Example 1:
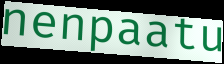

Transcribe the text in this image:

nenpaatu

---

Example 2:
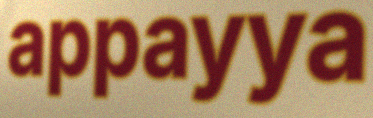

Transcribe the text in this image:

appayya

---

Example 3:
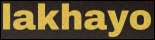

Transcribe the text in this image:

lakhayo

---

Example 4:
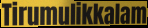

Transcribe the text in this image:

Tirumulikkalam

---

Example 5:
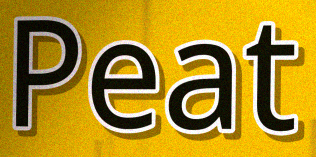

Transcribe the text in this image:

Peat